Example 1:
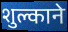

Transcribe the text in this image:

शुल्काने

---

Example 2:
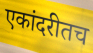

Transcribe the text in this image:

एकांदरीतच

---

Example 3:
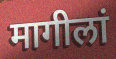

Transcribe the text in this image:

मागीलां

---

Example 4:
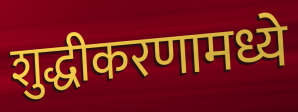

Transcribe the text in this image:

शुद्धीकरणामध्ये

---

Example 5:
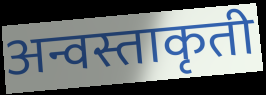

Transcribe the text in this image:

अन्वस्ताकृती